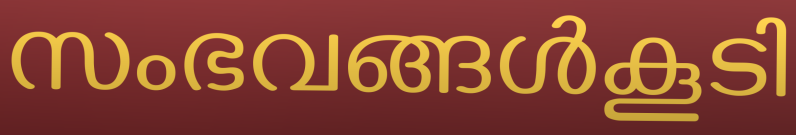
സംഭവങ്ങൾകൂടി